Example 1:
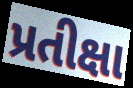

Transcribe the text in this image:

પ્રતીક્ષા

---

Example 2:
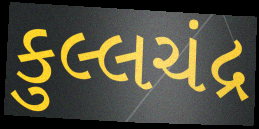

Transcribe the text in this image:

કુલ્લચંદ્ર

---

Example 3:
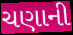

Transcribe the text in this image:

ચણાની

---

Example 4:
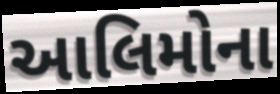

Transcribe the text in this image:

આલિમોના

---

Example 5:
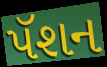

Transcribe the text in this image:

પૅશન